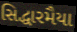
સિદ્ધારમૈયા